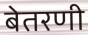
बेतरणी